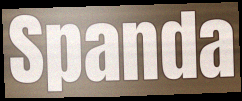
Spanda